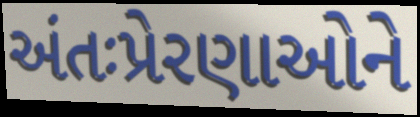
અંતઃપ્રેરણાઓને